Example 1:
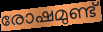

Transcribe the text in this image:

രോഷമുണ്ട്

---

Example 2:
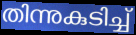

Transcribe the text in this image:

തിന്നുകുടിച്ച്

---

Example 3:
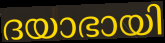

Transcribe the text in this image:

ദയാഭായി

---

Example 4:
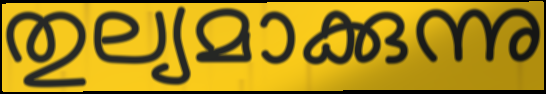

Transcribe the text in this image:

തുല്യമാക്കുന്നു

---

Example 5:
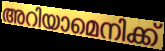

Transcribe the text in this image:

അറിയാമെനിക്ക്